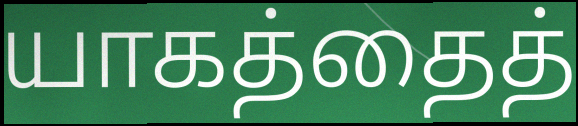
யாகத்தைத்